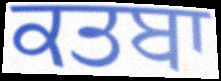
ਕਤਬਾ